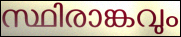
സ്ഥിരാങ്കവും